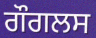
ਗੌਗਲਸ